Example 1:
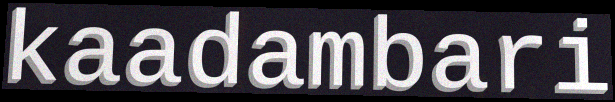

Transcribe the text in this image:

kaadambari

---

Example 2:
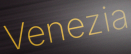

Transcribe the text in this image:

Venezia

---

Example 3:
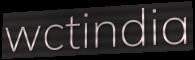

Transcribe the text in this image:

wctindia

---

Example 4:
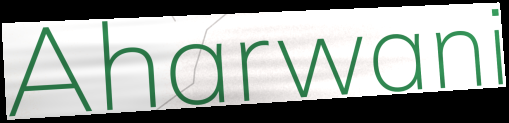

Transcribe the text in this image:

Aharwani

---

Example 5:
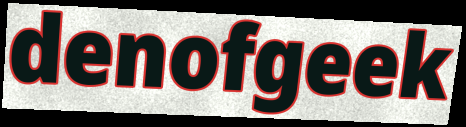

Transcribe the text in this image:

denofgeek